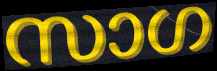
സാഗ